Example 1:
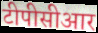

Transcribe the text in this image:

टीपीसीआर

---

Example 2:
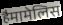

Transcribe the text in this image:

हैमामेलिस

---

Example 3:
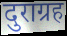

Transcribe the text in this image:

दुराग्रह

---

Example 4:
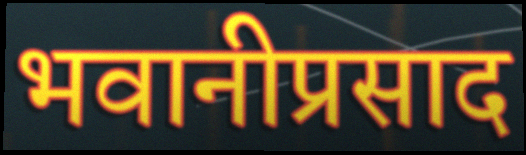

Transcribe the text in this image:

भवानीप्रसाद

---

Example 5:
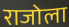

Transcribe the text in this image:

राजोला